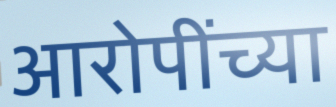
आरोपींच्या